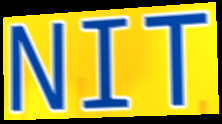
NIT